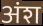
अंश